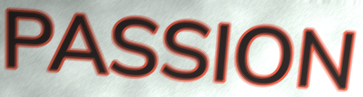
PASSION